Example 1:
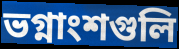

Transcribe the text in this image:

ভগ্নাংশগুলি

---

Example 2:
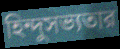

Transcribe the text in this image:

হিন্দুসভ্যতার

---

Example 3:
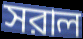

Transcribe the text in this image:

সরাল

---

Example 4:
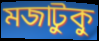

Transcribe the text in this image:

মজাটুকু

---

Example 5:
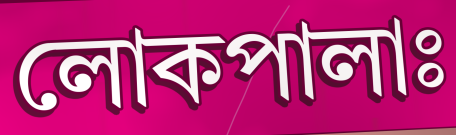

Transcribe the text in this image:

লোকপালাঃ